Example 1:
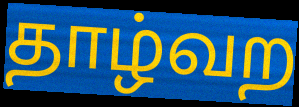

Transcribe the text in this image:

தாழ்வற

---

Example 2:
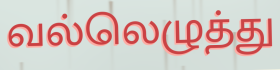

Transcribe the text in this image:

வல்லெழுத்து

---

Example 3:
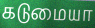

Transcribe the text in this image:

கடுமையா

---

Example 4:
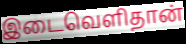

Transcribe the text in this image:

இடைவெளிதான்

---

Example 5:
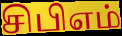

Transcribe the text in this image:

சிபிஎம்